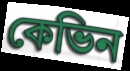
কেভিন